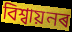
বিশ্বায়নৰ